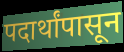
पदार्थांपासून